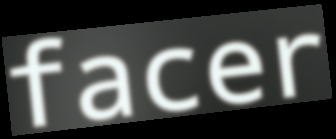
facer